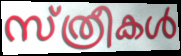
സ്‌ത്രീകൾ